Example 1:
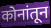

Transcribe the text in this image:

कोनांतून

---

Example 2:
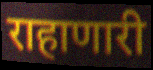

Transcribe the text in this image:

राहाणारी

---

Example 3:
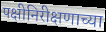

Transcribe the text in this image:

पक्षीनिरीक्षणाच्या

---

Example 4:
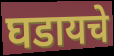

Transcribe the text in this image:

घडायचे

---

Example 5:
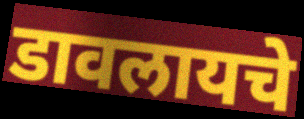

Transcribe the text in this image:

डावलायचे